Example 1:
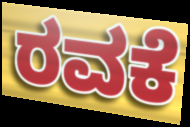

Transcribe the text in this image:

ರವಕೆ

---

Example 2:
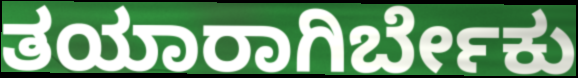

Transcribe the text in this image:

ತಯಾರಾಗಿರ್ಬೇಕು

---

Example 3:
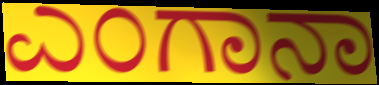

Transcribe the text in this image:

ಎಂಗಾನಾ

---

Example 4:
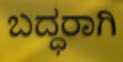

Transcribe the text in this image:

ಬದ್ಧರಾಗಿ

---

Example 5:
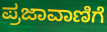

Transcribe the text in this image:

ಪ್ರಜಾವಾಣಿಗೆ